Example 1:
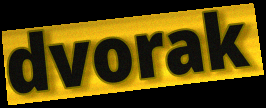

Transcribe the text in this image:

dvorak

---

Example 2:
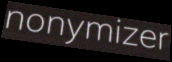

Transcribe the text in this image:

nonymizer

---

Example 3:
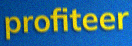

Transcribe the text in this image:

profiteer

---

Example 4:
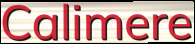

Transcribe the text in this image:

Calimere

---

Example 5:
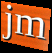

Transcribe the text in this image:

jm